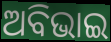
ଅବିଭାଇ